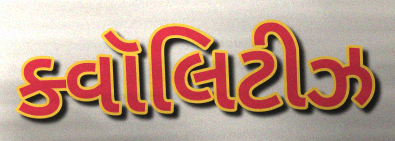
ક્વૉલિટીઝ